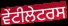
ਵੇਂਟੀਲੇਟਰਸ